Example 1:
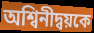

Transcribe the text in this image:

অশ্বিনীদ্বয়কে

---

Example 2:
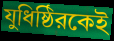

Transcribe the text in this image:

যুধিষ্ঠিরকেই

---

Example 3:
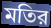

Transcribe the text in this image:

মতির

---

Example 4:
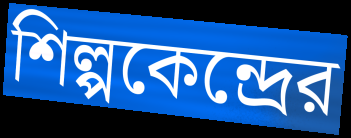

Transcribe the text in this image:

শিল্পকেন্দ্রের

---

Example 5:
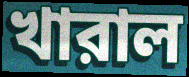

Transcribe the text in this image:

খারাল